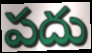
పదు